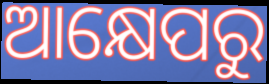
ଆକ୍ଷେପରୁ